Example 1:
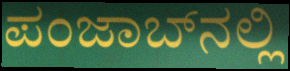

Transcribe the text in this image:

ಪಂಜಾಬ್‌ನಲ್ಲಿ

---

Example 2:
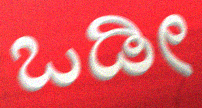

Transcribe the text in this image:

ಒಡೀ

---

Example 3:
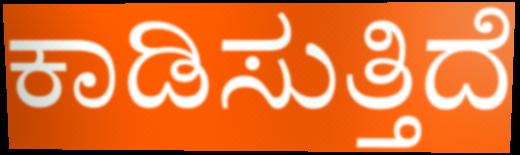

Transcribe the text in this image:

ಕಾಡಿಸುತ್ತಿದೆ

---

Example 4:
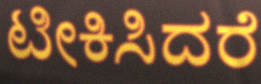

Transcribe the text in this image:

ಟೀಕಿಸಿದರೆ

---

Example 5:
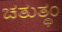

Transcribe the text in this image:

ಚತುತ್ಥಂ